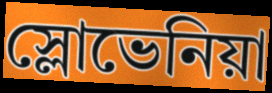
স্লোভেনিয়া